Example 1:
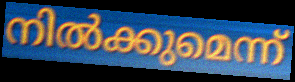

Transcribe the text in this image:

നിൽക്കുമെന്ന്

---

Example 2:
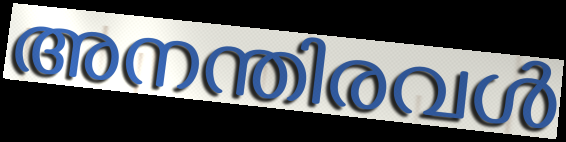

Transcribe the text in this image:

അനന്തിരവൾ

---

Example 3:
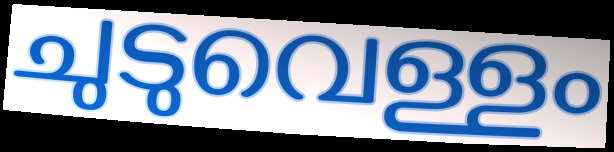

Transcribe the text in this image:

ചുടുവെള്ളം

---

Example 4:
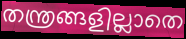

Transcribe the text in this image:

തന്ത്രങ്ങളില്ലാതെ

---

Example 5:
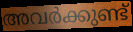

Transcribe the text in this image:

അവർക്കുണ്ട്